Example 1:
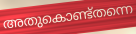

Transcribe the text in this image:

അതുകൊണ്ട്തന്നെ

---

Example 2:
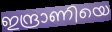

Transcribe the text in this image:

ഇന്ദ്രാണിയെ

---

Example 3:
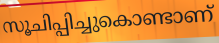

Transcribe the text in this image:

സൂചിപ്പിച്ചുകൊണ്ടാണ്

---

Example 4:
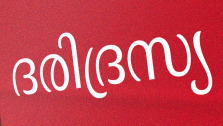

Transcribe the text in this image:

ദരിദ്രസ്യ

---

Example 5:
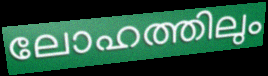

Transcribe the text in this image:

ലോഹത്തിലും